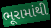
ભૂરામાંથી